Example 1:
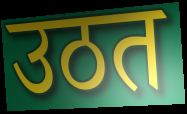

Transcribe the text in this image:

उठत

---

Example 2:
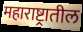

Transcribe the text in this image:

महाराष्ट्रातील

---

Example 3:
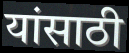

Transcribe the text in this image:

यांसाठी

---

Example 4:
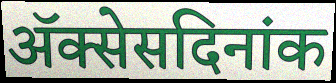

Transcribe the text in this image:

ॲक्सेसदिनांक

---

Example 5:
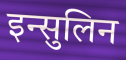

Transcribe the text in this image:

इन्सुलिन